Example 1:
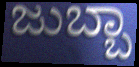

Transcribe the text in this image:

ಜುಬ್ಬಾ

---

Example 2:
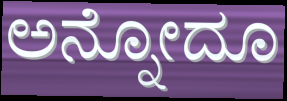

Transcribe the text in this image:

ಅನ್ನೋದೂ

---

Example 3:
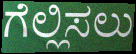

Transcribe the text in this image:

ಗೆಲ್ಲಿಸಲು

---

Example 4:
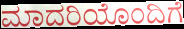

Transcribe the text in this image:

ಮಾದರಿಯೊಂದಿಗೆ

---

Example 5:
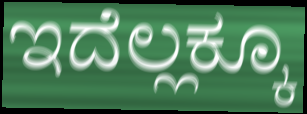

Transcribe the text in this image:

ಇದೆಲ್ಲಕ್ಕೂ